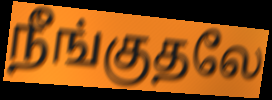
நீங்குதலே